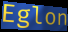
Eglon